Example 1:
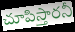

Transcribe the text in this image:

చూపిస్తారనీ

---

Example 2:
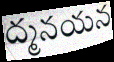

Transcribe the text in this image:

ద్మనయన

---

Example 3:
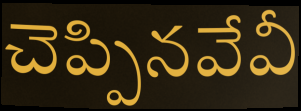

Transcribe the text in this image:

చెప్పినవేవీ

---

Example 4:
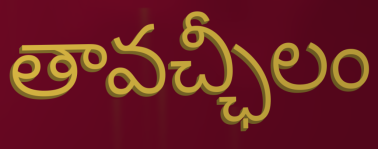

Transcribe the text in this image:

తావచ్ఛీలం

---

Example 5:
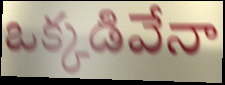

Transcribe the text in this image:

ఒక్కడివేనా